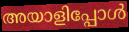
അയാളിപ്പോൾ